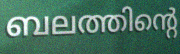
ബലത്തിന്റെ